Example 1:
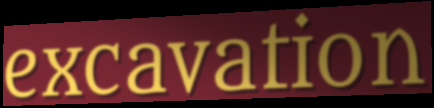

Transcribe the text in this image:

excavation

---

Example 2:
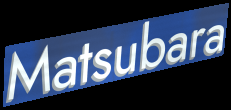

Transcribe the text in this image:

Matsubara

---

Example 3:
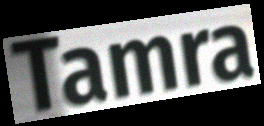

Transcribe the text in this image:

Tamra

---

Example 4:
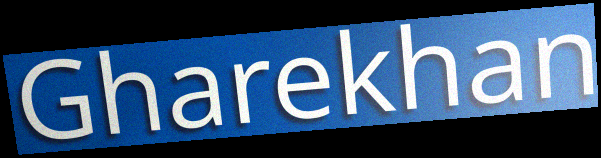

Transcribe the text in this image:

Gharekhan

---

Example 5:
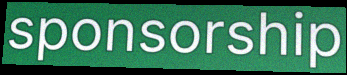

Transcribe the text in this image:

sponsorship